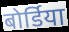
बोर्डिया